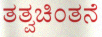
ತತ್ವಚಿಂತನೆ